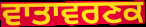
ਵਾਤਾਵਰਣਕ